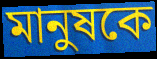
মানুষকে